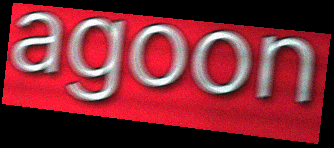
agoon